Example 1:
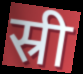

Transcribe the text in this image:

स्री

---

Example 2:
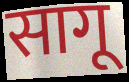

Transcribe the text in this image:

सागू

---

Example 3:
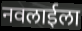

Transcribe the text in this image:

नवलाईला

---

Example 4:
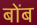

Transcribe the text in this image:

बोंब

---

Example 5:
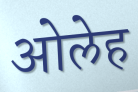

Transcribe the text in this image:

ओलेह